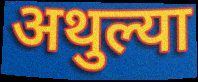
अथुल्या